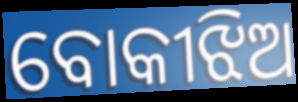
ବୋକୀଝିଅ